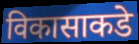
विकासाकडे